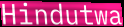
Hindutwa